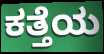
ಕತ್ತೆಯ